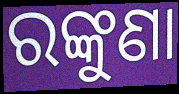
ରଙ୍କୁଣା